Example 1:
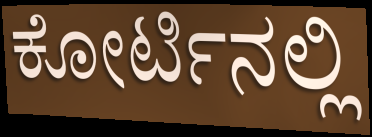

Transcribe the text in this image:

ಕೋರ್ಟಿನಲ್ಲಿ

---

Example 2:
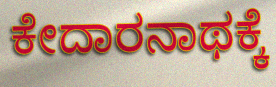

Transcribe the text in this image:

ಕೇದಾರನಾಥಕ್ಕೆ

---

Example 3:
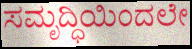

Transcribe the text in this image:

ಸಮೃದ್ಧಿಯಿಂದಲೇ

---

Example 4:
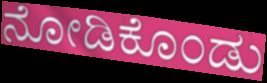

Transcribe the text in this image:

ನೋಡಿಕೊಂಡು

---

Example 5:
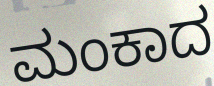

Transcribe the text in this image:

ಮಂಕಾದ